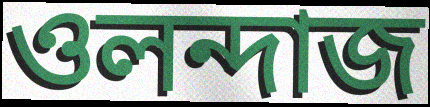
ওলন্দাজ